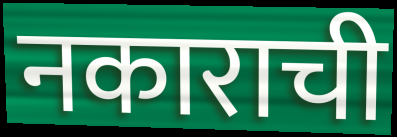
नकाराची